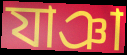
যাঞা